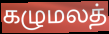
கழுமலத்